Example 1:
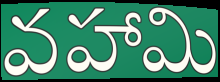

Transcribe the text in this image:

వహామి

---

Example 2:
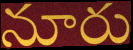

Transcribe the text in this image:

నూరు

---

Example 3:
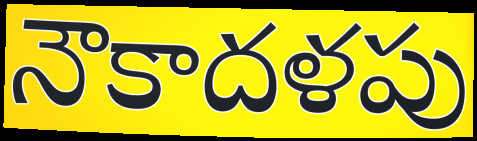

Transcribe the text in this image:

నౌకాదళపు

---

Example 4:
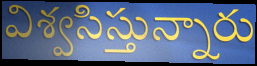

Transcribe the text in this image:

విశ్వసిస్తున్నారు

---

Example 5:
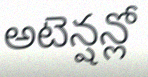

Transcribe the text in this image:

అటెన్షన్లో